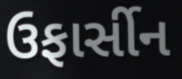
ઉફાર્સીન